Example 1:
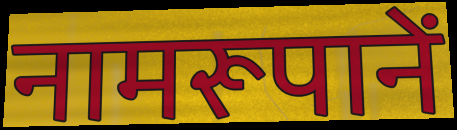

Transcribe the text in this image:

नामरूपानें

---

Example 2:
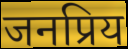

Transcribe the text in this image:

जनप्रिय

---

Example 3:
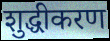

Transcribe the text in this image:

शुद्धीकरण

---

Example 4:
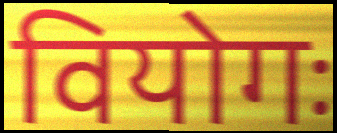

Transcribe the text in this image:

वियोगः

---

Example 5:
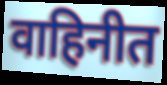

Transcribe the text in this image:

वाहिनीत